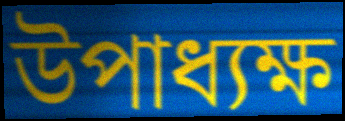
উপাধ্যক্ষ